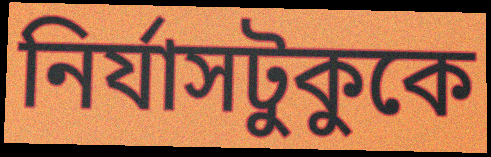
নির্যাসটুকুকে